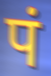
पं